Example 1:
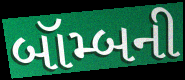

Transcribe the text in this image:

બૉમ્બની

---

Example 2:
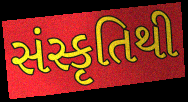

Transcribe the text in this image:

સંસ્કૃતિથી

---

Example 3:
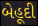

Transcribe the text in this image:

બેહૂદી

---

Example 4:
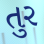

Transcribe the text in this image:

તુર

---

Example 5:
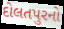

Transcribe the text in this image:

દોલતપુરનો